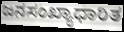
ಜನಸಂಖ್ಯಾಧಾರಿತ